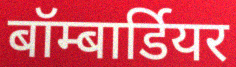
बॉम्बार्डियर